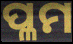
ପ୍ଳମ